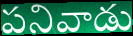
పనివాడు